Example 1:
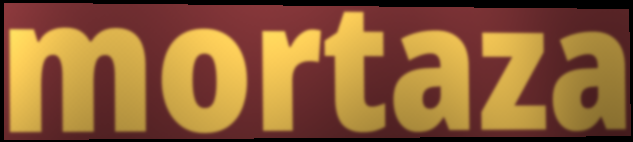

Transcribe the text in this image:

mortaza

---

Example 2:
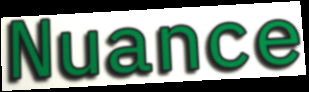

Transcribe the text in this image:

Nuance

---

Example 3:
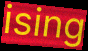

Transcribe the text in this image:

ising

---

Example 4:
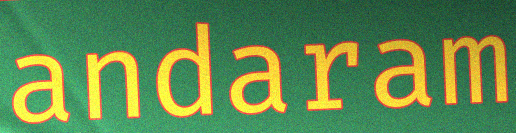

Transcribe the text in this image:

andaram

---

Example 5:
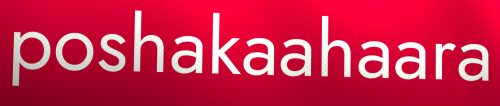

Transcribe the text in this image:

poshakaahaara